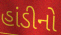
હાંડીનો